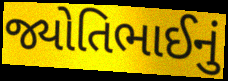
જ્યોતિભાઈનું